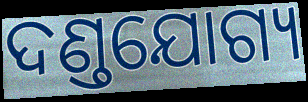
ଦଣ୍ଡଯୋଗ୍ୟ